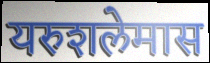
यरुशलेमास